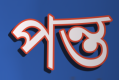
পন্ত